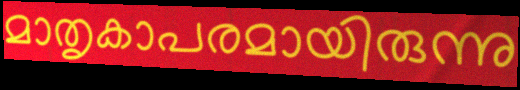
മാതൃകാപരമായിരുന്നു